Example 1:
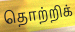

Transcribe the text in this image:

தொற்றிக்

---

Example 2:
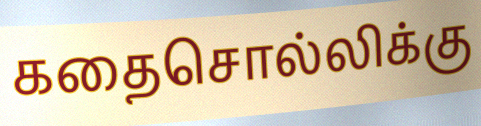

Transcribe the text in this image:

கதைசொல்லிக்கு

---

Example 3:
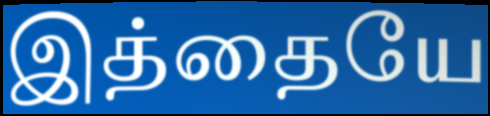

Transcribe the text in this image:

இத்தையே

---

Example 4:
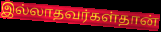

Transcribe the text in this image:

இல்லாதவர்கள்தான்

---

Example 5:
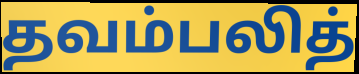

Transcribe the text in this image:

தவம்பலித்